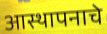
आस्थापनाचे